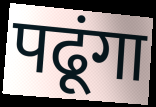
पढूंगा